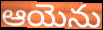
ఆయెను